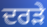
ਦਰੜੇ